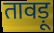
तावड़ू